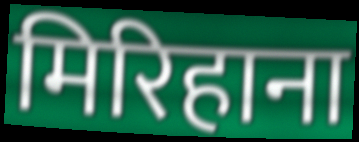
मिरिहाना